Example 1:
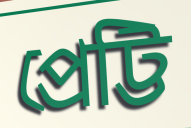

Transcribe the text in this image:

প্রেট্টি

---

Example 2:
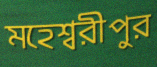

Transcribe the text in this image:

মহেশ্বরীপুর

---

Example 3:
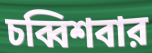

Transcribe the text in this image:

চব্বিশবার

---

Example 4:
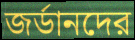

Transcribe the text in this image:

জর্ডানদের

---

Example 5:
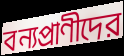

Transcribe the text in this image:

বন্যপ্রাণীদের